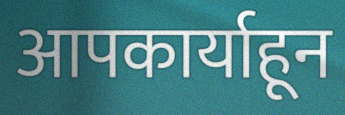
आपकार्याहून